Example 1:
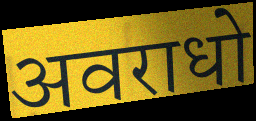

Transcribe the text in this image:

अवराधो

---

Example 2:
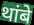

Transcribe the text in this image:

थांबे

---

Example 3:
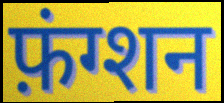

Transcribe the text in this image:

फ़ंग्शन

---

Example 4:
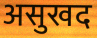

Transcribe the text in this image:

असुखद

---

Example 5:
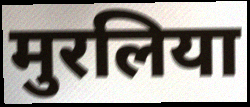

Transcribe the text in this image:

मुरलिया